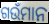
ଗଉଁମାନ